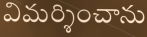
విమర్శించాను